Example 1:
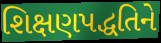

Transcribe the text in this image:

શિક્ષણપદ્ધતિને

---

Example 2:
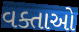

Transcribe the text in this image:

વક્તાઓ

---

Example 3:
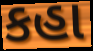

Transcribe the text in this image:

કહા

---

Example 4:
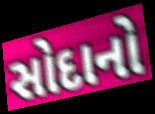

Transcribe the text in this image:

સોદાનો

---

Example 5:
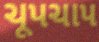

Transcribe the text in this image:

ચૂપચાપ